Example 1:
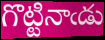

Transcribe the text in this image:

గొట్టినాఁడు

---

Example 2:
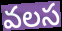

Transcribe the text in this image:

వలస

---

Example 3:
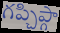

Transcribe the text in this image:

గప్చిప్గా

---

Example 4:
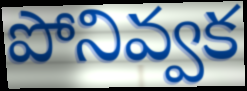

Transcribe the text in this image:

పోనివ్వక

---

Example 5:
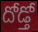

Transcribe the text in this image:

దోడ్తో